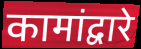
कामांद्वारे